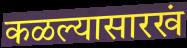
कळल्यासारखं